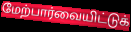
மேற்பார்வையிட்டுக்